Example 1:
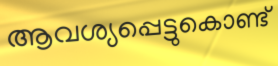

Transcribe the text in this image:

ആവശ്യപ്പെട്ടുകൊണ്ട്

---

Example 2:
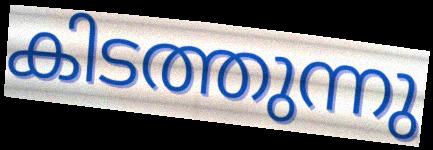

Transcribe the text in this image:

കിടത്തുന്നു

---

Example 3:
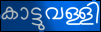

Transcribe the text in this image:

കാട്ടുവള്ളി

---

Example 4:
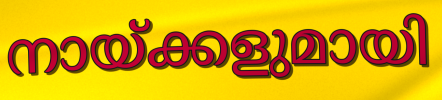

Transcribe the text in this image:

നായ്ക്കളുമായി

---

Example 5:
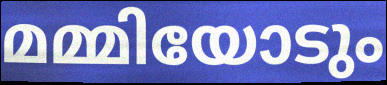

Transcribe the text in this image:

മമ്മിയോടും